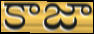
కాజా